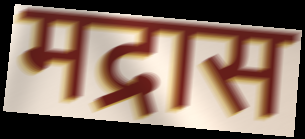
मद्रास